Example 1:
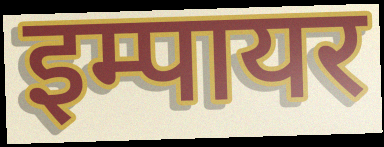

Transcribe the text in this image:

इम्पायर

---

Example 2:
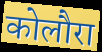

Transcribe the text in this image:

कोलौरा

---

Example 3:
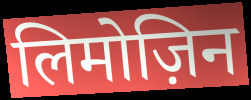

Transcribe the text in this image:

लिमोज़िन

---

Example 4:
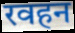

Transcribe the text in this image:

रवहन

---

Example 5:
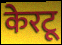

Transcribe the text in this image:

केरटू